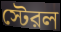
স্টেরল